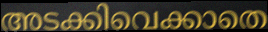
അടക്കിവെക്കാതെ